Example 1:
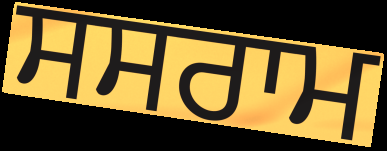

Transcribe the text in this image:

ਸਸਰਾਮ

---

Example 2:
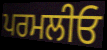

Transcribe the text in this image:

ਪਰਮਲੀਓ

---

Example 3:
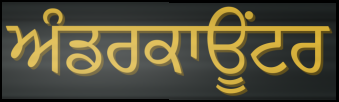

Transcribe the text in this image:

ਅੰਡਰਕਾਊਂਟਰ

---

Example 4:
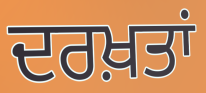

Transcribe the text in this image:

ਦਰਖ਼ਤਾਂ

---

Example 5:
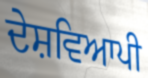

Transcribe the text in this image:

ਦੇਸ਼ਵਿਆਪੀ